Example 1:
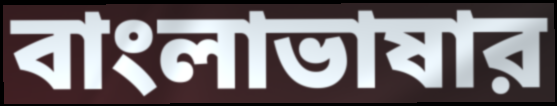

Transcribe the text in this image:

বাংলাভাষার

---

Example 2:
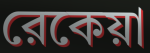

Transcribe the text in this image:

রেকেয়া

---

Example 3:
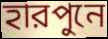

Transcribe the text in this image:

হারপুনে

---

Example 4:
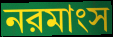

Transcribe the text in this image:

নরমাংস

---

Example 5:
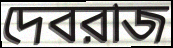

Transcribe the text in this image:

দেবরাজ